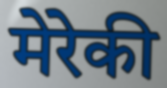
मेरेकी